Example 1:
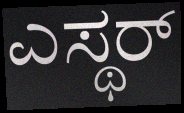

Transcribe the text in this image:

ಎಸ್ಥರ್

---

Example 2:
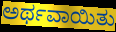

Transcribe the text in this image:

ಅರ್ಥವಾಯಿತು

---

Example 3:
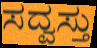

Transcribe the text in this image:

ಸದ್ವಸ್ತು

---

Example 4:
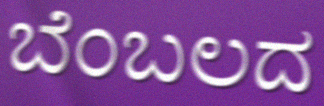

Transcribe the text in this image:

ಬೆಂಬಲದ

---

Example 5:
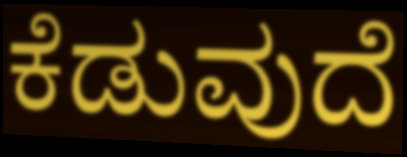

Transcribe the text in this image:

ಕೆಡುವುದೆ